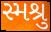
સ્મશ્રુ